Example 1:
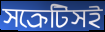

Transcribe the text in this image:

সক্রেটিসই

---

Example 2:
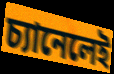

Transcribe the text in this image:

চ্যানেলেই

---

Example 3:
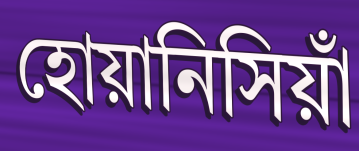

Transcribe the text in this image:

হোয়ানিসিয়াঁ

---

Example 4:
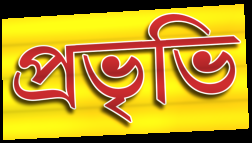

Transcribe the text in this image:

প্রভৃভি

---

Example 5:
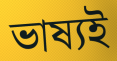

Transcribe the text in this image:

ভাষ্যই